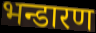
भन्डारण